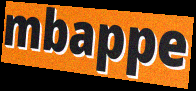
mbappe